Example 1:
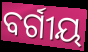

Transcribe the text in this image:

ବର୍ଗୀୟ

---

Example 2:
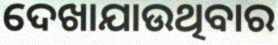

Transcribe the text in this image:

ଦେଖାଯାଉଥିବାର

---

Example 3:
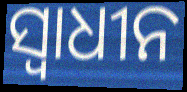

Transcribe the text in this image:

ସ୍ବାଧୀନ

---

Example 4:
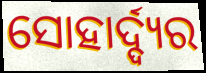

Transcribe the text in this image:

ସୋହାର୍ଦ୍ଦ୍ୟର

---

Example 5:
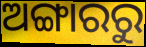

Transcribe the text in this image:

ଅଙ୍ଗାରରୁ